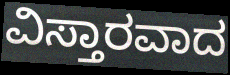
ವಿಸ್ತಾರವಾದ